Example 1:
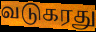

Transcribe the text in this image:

வடுகரது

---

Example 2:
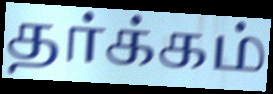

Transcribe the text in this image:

தர்க்கம்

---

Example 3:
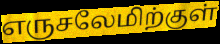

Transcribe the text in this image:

எருசலேமிற்குள்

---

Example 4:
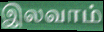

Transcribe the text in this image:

இலவாம்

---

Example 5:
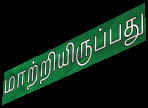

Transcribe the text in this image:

மாற்றியிருப்பது